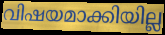
വിഷയമാക്കിയില്ല